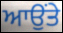
ਆਉਂਤੇ